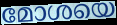
മോശയെ